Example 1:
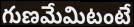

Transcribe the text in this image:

గుణమేమిటంటే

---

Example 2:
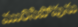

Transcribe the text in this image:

మురిసిపోవును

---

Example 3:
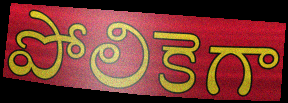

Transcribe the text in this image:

పోలికెగా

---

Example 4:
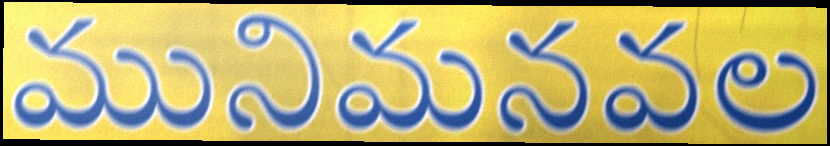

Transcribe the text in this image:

మునిమనవల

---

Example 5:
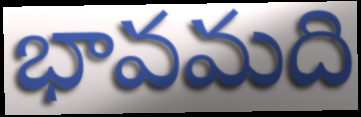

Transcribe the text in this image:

భావమది